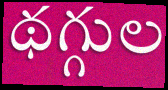
థగ్గుల